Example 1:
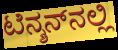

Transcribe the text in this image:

ಟೆನ್ಶನ್‌ನಲ್ಲಿ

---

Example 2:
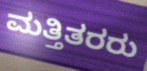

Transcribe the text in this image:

ಮತ್ತಿತರರು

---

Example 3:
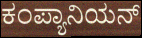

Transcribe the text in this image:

ಕಂಪ್ಯಾನಿಯನ್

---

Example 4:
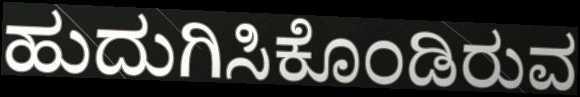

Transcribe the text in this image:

ಹುದುಗಿಸಿಕೊಂಡಿರುವ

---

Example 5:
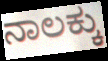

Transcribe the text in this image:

ನಾಲಕ್ಕು